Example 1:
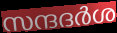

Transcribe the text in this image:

സന്ദദർശ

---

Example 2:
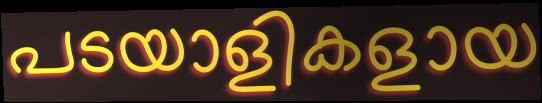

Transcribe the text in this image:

പടയാളികളായ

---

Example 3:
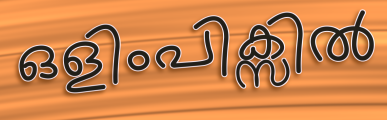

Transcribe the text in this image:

ഒളിംപിക്സിൽ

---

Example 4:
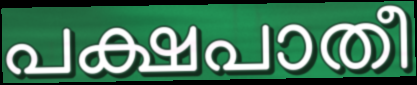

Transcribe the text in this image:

പക്ഷപാതീ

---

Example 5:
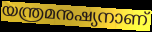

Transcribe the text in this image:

യന്ത്രമനുഷ്യനാണ്